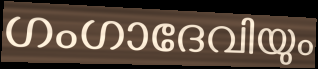
ഗംഗാദേവിയും